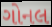
ગોનલ